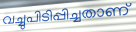
വച്ചുപിടിപ്പിച്ചതാണ്